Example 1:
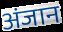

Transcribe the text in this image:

अंजान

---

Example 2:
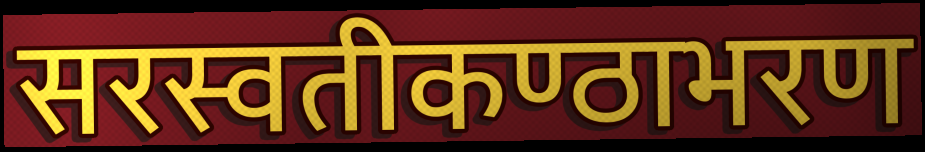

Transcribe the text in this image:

सरस्वतीकण्ठाभरण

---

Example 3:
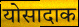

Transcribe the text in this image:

योसादाक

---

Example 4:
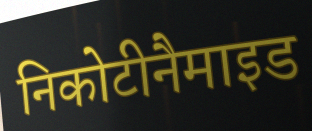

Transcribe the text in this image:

निकोटीनैमाइड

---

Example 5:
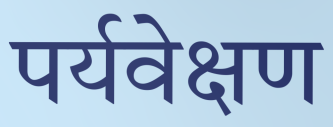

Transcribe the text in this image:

पर्यवेक्षण